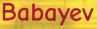
Babayev